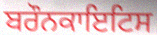
ਬਰੌਨਕਾਇਟਿਸ